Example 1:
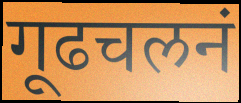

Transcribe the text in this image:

गूढचलनं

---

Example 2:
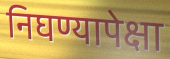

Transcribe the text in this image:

निघण्यापेक्षा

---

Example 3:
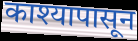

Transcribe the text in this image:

काश्यापासून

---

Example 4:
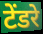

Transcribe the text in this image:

टेंडरे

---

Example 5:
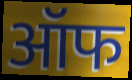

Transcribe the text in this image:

ऑफ